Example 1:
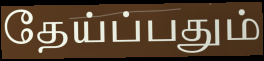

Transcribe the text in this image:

தேய்ப்பதும்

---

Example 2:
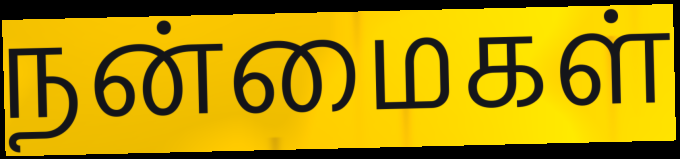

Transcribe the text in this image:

நன்மைகள்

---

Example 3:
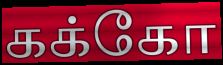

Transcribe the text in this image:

கக்கோ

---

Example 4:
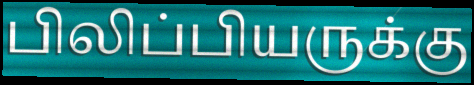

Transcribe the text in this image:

பிலிப்பியருக்கு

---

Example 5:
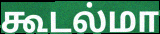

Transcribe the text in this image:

கூடல்மா